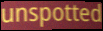
unspotted